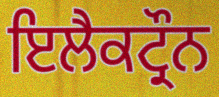
ਇਲੈਕਟ੍ਰੌਨ